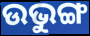
ଉଭୁଙ୍ଗ